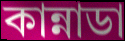
কান্নাডা